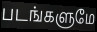
படங்களுமே